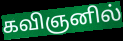
கவிஞனில்